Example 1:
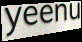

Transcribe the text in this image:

yeenu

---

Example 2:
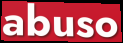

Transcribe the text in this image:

abuso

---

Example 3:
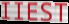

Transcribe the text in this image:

IIEST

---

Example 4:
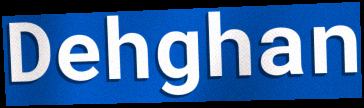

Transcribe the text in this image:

Dehghan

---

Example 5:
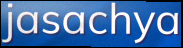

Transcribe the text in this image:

jasachya